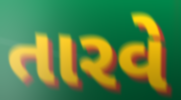
તારવે